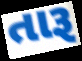
તારૂ